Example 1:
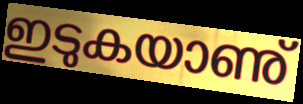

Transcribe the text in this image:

ഇടുകയാണു്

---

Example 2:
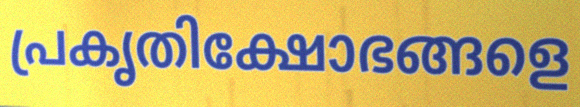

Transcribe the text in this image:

പ്രകൃതിക്ഷോഭങ്ങളെ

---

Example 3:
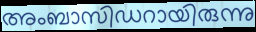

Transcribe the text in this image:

അംബാസിഡറായിരുന്നു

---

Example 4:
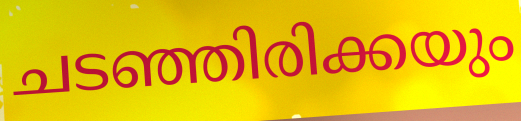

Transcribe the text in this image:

ചടഞ്ഞിരിക്കയും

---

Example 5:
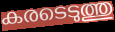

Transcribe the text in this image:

കരടെടുത്തു